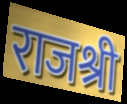
राजश्री